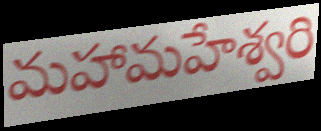
మహామహేశ్వరి